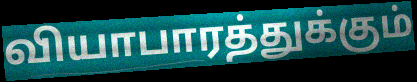
வியாபாரத்துக்கும்